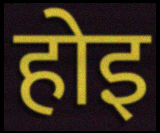
होइ